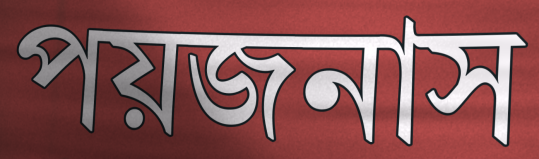
পয়জনাস